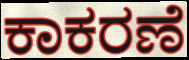
ಕಾಕರಣೆ